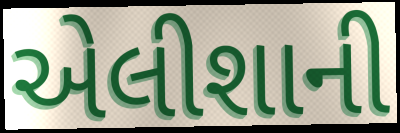
એલીશાની